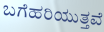
ಬಗೆಹರಿಯುತ್ತವೆ